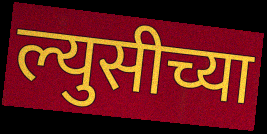
ल्युसीच्या